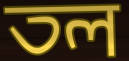
তল